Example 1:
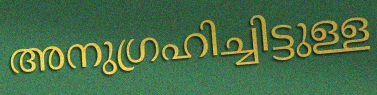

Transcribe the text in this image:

അനുഗ്രഹിച്ചിട്ടുള്ള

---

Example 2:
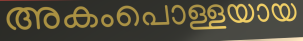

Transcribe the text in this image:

അകംപൊള്ളയായ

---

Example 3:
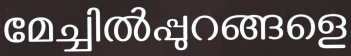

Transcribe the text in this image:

മേച്ചിൽപ്പുറങ്ങളെ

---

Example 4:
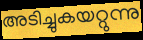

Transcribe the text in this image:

അടിച്ചുകയറ്റുന്നു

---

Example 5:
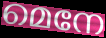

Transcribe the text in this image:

മെനേ